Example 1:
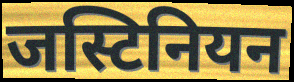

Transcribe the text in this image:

जस्टिनियन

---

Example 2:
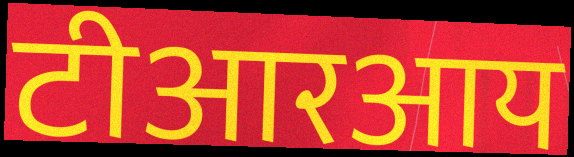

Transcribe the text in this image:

टीआरआय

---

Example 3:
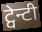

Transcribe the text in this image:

ट्वेन्टी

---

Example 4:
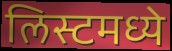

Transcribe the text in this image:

लिस्टमध्ये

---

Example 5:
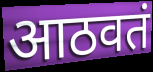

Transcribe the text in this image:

आठवतं